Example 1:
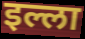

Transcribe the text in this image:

इल्ला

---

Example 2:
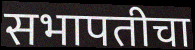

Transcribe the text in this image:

सभापतीचा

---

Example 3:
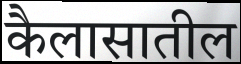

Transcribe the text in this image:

कैलासातील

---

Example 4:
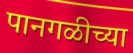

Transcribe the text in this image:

पानगळीच्या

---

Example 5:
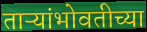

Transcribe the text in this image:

ताऱ्यांभोवतीच्या